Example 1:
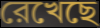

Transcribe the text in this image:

রেখেছে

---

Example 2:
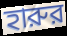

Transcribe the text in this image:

হারুর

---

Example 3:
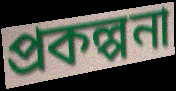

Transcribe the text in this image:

প্রকল্পনা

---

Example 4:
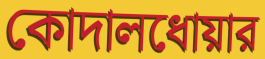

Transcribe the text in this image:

কোদালধোয়ার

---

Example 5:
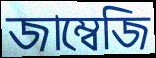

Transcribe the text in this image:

জাম্বেজি